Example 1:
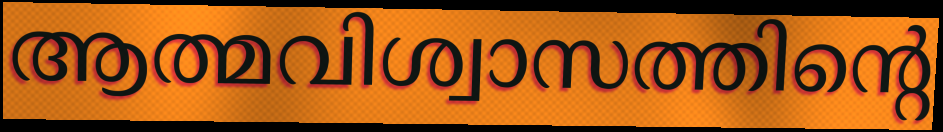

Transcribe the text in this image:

ആത്മവിശ്വാസത്തിന്റെ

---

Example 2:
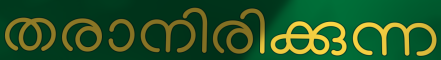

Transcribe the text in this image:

തരാനിരിക്കുന്ന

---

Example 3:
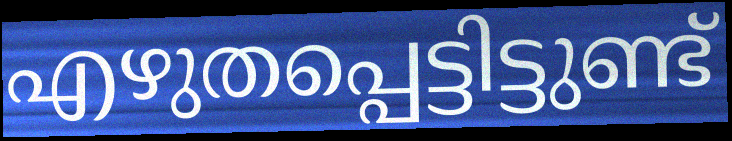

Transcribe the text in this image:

എഴുതപ്പെട്ടിട്ടുണ്ട്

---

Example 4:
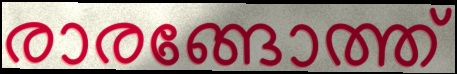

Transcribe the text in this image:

രാരങ്ങോത്ത്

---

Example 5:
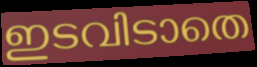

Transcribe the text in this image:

ഇടവിടാതെ